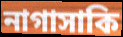
নাগাসাকি